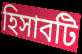
হিসাবটি